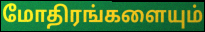
மோதிரங்களையும்